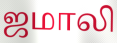
ஜமாலி